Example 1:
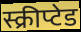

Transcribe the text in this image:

स्क्रीप्टेड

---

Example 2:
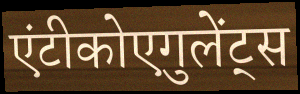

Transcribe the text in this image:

एंटीकोएगुलेंट्स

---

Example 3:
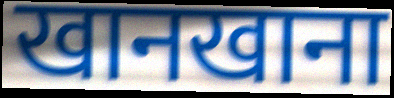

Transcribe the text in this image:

खानखाना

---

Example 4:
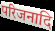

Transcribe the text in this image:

परिजनादि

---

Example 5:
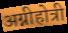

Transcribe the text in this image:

अग्नीहोत्री